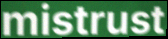
mistrust